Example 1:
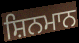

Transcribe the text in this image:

ਸ਼ਿਨਮਾਨ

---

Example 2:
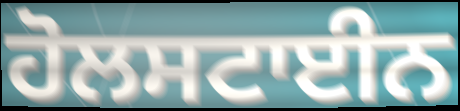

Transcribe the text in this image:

ਹੋਲਸਟਾਈਨ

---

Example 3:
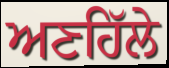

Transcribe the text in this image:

ਅਣਹਿੱਲੇ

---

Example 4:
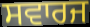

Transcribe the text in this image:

ਸਵਾਰਜ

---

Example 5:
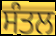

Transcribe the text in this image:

ਸੰਤਲ